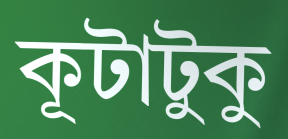
কূটাটুকু